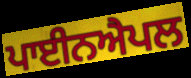
ਪਾਈਨਐਪਲ